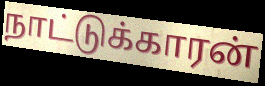
நாட்டுக்காரன்